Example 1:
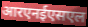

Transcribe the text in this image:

आरएनईएसएल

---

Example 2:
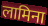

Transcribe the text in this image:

लामिना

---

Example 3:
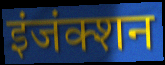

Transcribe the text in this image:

इंजंक्शन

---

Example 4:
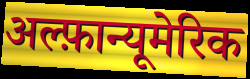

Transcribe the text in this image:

अल्फ़ान्यूमेरिक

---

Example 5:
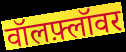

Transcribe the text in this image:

वॉलफ़्लॉवर